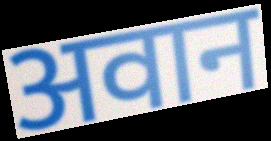
अवान